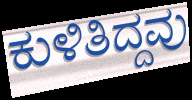
ಕುಳಿತಿದ್ದವು